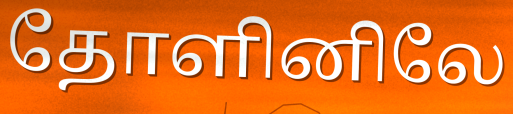
தோளினிலே